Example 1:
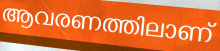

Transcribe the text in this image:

ആവരണത്തിലാണ്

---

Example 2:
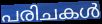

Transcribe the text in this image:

പരിചകൾ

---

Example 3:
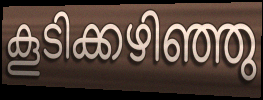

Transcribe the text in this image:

കൂടിക്കഴിഞ്ഞു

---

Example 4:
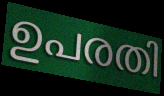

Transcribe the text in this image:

ഉപരതി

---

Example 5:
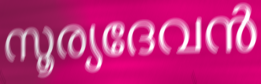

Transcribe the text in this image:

സൂര്യദേവൻ